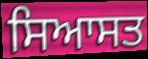
ਸਿਆਸਤ